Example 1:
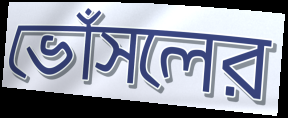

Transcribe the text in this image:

ভোঁসলের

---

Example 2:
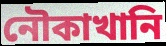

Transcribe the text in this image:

নৌকাখানি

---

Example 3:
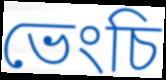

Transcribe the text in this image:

ভেংচি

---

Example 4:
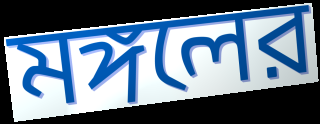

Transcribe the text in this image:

মঙ্গলের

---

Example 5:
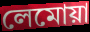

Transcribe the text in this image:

লেমোয়া